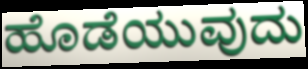
ಹೊಡೆಯುವುದು